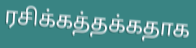
ரசிக்கத்தக்கதாக